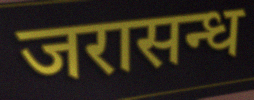
जरासन्ध